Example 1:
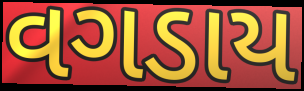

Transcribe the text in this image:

વગડાય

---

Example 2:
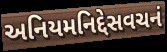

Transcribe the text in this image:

અનિયમનિદ્દેસવચનં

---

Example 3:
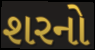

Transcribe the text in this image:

શરનો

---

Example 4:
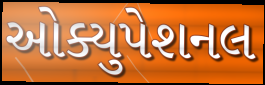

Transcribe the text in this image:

ઓક્યુપેશનલ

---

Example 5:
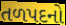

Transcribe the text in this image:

તળપદનો